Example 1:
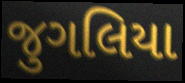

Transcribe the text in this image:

જુગલિયા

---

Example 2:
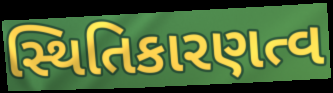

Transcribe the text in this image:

સ્થિતિકારણત્વ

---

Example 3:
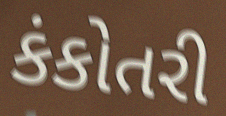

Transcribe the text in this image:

કંકોતરી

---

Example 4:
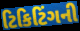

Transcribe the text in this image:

ટિકિટિંગની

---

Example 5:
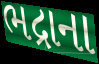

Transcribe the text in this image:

ભદ્રાના